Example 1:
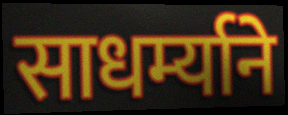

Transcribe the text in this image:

साधर्म्याने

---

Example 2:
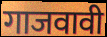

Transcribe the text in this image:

गाजवावी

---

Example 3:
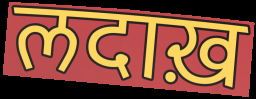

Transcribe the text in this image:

लदाख़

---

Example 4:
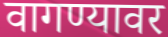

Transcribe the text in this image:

वागण्यावर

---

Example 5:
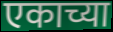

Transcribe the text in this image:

एकाच्या